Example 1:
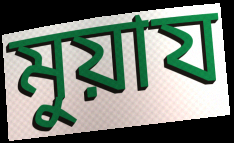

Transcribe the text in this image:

মুয়ায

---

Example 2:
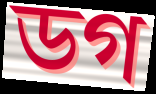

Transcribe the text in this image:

ডগ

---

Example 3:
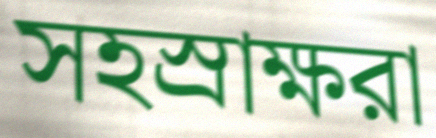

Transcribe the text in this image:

সহস্রাক্ষরা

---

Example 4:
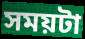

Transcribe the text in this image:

সময়টা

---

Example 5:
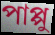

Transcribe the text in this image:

পাপ্পু